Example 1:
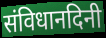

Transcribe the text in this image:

संविधानदिनी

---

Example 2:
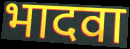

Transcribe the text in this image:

भादवा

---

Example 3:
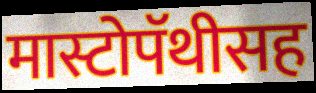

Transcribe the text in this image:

मास्टोपॅथीसह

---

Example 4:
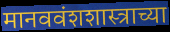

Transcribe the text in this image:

मानववंशशास्त्राच्या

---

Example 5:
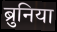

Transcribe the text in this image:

ब्रुनिया